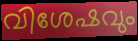
വിശേഷവും